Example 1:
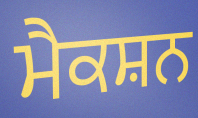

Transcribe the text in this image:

ਮੈਕਸ਼ਨ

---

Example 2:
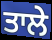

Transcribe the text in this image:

ਤਾਲੇ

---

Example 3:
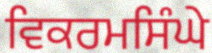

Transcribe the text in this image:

ਵਿਕਰਮਸਿੰਘੇ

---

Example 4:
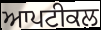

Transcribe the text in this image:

ਆਪਟੀਕਲ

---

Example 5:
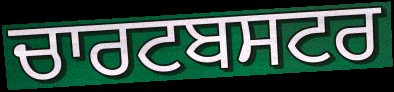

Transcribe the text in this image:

ਚਾਰਟਬਸਟਰ